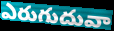
ఎరుగుదువా